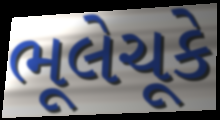
ભૂલેચૂકે